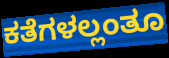
ಕತೆಗಳಲ್ಲಂತೂ